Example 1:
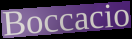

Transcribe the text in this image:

Boccacio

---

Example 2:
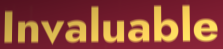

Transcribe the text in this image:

Invaluable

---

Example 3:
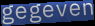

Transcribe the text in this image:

gegeven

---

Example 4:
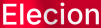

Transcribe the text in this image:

Elecion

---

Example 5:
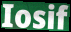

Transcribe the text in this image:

Iosif